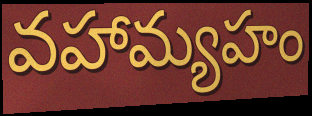
వహామ్యహం